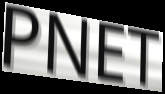
PNET